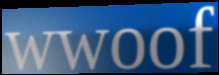
wwoof